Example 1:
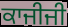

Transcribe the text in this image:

ਕਾਜੀਜੀ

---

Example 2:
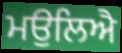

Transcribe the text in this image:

ਮਉਲਿਐ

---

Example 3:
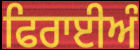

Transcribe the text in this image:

ਫਿਰਾਈਅੰ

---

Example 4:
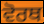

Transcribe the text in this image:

ਵੋਰਥ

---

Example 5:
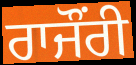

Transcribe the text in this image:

ਰਾਜੌਂਰੀ